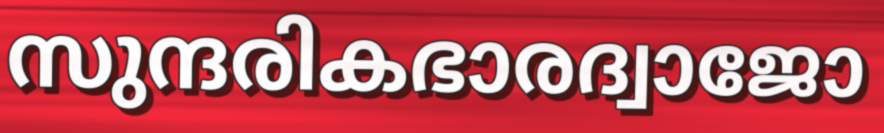
സുന്ദരികഭാരദ്വാജോ